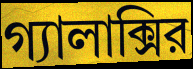
গ্যালাক্সির